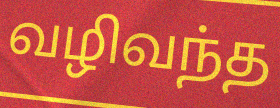
வழிவந்த